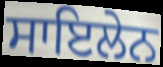
ਸਾਇਲੇਨ